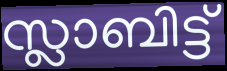
സ്ലാബിട്ട്